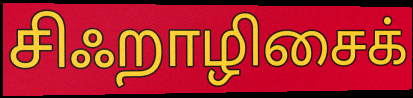
சிஃறாழிசைக்